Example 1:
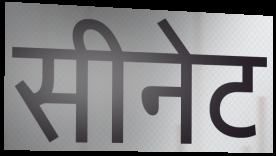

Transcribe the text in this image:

सीनेट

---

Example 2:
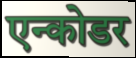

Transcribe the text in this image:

एन्कोडर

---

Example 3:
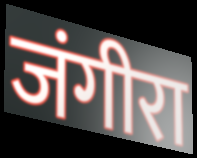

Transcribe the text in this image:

जंगीरा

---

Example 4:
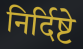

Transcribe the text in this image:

निर्दिष्टे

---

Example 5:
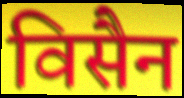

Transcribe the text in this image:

विसैन